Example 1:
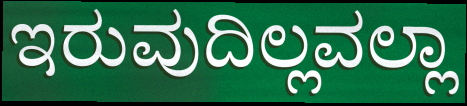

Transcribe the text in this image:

ಇರುವುದಿಲ್ಲವಲ್ಲಾ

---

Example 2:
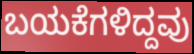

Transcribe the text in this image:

ಬಯಕೆಗಳಿದ್ದವು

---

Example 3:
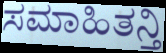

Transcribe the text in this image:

ಸಮಾಹಿತನ್ತಿ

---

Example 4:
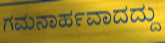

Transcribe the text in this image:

ಗಮನಾರ್ಹವಾದದ್ದು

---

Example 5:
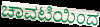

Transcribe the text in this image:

ಚಾವಟಿಯಿಂದ